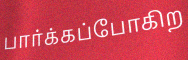
பார்க்கப்போகிற